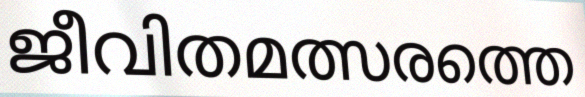
ജീവിതമത്സരത്തെ